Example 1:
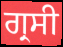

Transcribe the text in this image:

ਗ੍ਰਸੀ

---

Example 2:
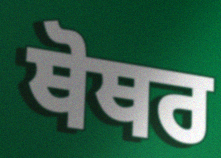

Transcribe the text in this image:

ਥੋਥਰ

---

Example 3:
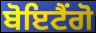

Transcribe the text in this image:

ਬੋਇਟੈਂਗੋ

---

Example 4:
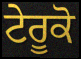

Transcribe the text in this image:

ਟੇਰੂਕੋ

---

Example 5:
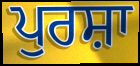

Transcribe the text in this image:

ਪੁਰਸ਼ਾ